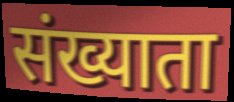
संख्याता